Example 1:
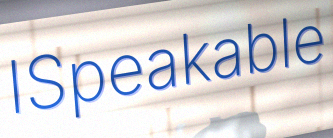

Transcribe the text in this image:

ISpeakable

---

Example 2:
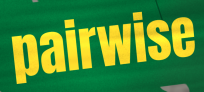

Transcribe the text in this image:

pairwise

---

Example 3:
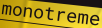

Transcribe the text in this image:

monotreme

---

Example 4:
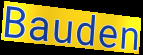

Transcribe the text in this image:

Bauden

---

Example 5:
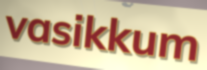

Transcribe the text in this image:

vasikkum